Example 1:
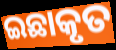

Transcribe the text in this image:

ଇଛାକୃତ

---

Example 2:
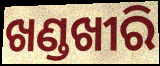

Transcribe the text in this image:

ଖଣ୍ଡଖୀରି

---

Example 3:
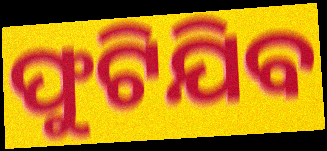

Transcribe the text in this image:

ଫୁଟିଯିବ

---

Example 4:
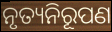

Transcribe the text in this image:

ନୃତ୍ୟନିରୂପଣ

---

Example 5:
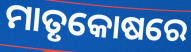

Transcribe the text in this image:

ମାତୃକୋଷରେ